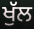
ਖੁੱਲ